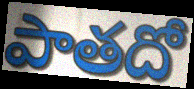
పాతదో